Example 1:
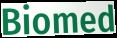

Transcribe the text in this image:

Biomed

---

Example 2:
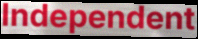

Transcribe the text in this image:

Independent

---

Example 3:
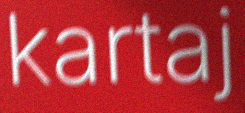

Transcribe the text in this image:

kartaj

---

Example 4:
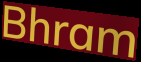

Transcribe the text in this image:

Bhram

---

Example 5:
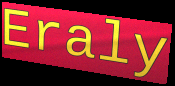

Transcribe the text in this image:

Eraly